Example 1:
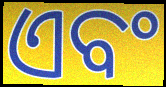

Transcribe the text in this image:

ଏବଂ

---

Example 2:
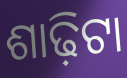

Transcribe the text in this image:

ଶାଢ଼ିଟା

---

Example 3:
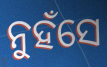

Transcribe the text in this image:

ନୁହଁସେ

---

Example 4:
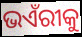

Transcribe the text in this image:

ଭଏଁରୀକୁ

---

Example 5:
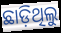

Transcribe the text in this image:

ଛାଡ଼ିଥିଲୁ